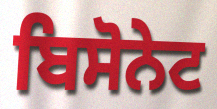
ਬਿਸੋਨੇਟ